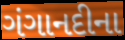
ગંગાનદીના